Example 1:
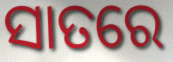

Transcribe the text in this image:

ସାତରେ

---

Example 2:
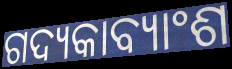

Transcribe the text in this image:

ଗଦ୍ୟକାବ୍ୟାଂଶ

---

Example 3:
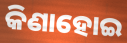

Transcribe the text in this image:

କିଣାହୋଇ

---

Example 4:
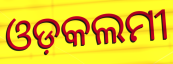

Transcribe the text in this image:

ଓଡ଼କଲମୀ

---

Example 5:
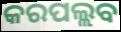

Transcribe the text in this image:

କରପଲ୍ଲବ